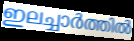
ഇലച്ചാർത്തിൽ